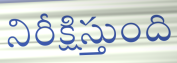
నిరీక్షిస్తుంది